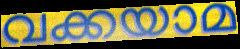
വക്കയാമ